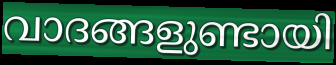
വാദങ്ങളുണ്ടായി